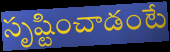
సృష్టించాడంటే